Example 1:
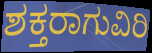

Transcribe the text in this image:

ಶಕ್ತರಾಗುವಿರಿ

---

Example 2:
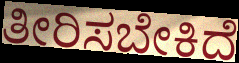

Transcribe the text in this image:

ತೀರಿಸಬೇಕಿದೆ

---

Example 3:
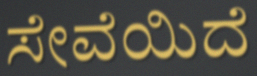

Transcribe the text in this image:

ಸೇವೆಯಿದೆ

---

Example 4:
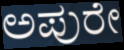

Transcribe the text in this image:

ಅಪುರೇ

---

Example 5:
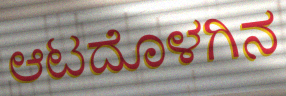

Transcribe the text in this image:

ಆಟದೊಳಗಿನ